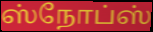
ஸ்நோப்ஸ்